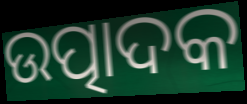
ଉତ୍ପାଦକ